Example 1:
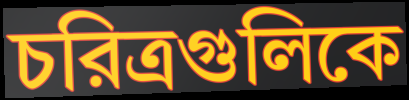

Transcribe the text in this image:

চরিত্রগুলিকে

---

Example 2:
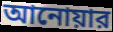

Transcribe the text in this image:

আনোয়ার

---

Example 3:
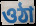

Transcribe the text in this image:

ওঠা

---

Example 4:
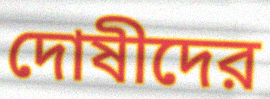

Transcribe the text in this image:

দোষীদের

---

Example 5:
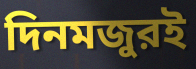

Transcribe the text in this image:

দিনমজুরই